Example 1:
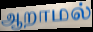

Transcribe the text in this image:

ஆறாமல்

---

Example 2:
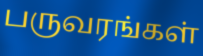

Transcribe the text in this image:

பருவரங்கள்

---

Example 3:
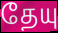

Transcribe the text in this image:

தேயு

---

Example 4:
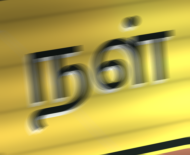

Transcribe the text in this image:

நள்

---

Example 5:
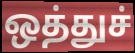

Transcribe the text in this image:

ஒத்துச்